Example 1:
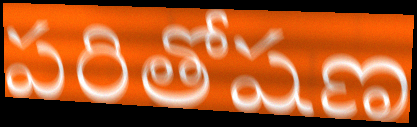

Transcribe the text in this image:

పరితోషణ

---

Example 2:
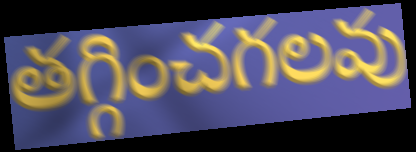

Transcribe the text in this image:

తగ్గించగలవు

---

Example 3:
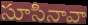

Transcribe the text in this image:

సూసినావా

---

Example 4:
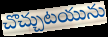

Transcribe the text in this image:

చొచ్చుటయును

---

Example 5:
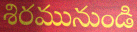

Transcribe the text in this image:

శిరమునుండి